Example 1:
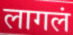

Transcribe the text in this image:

लागलं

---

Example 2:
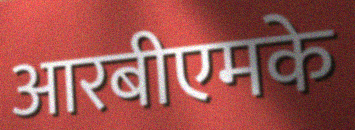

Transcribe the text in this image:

आरबीएमके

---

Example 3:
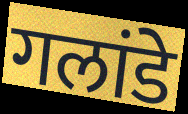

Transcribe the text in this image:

गलांडे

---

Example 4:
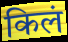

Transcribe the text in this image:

किलं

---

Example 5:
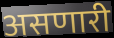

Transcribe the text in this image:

असणारी